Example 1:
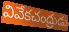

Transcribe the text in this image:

వివేకచంద్రుడు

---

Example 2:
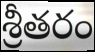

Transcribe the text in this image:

శ్రీతరం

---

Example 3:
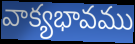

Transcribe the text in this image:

వాక్యభావము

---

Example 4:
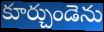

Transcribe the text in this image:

కూర్చుండెను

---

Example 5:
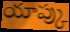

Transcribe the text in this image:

యాప్కు